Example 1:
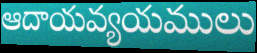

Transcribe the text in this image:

ఆదాయవ్యయములు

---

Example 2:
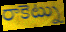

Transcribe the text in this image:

రాకెట్ను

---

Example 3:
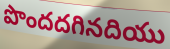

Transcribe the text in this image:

పొందదగినదియు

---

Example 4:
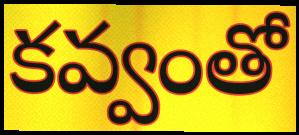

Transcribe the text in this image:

కవ్వంతో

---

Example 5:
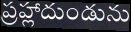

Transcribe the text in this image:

ప్రహ్లాదుండును